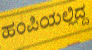
ಹಂಪಿಯಲ್ಲಿದ್ದ